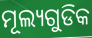
ମୂଲ୍ୟଗୁଡିକ